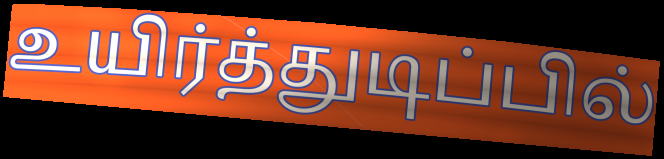
உயிர்த்துடிப்பில்